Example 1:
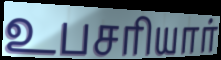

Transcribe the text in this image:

உபசரியார்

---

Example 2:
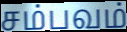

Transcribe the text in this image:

சம்பவம்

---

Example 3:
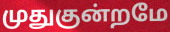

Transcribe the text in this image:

முதுகுன்றமே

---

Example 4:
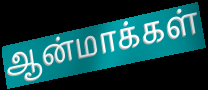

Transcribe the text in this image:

ஆன்மாக்கள்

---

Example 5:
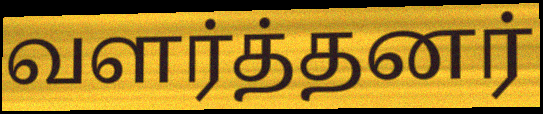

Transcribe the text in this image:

வளர்த்தனர்